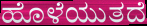
ಹೊಳೆಯುತದೆ